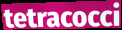
tetracocci